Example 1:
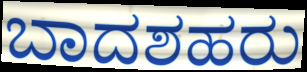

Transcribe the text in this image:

ಬಾದಶಹರು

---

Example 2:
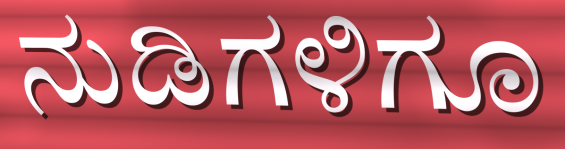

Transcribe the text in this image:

ನುಡಿಗಳಿಗೂ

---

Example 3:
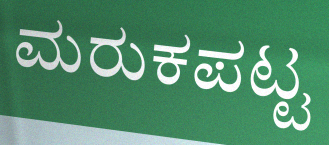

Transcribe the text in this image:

ಮರುಕಪಟ್ಟ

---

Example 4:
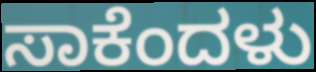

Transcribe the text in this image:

ಸಾಕೆಂದಳು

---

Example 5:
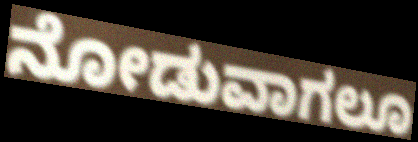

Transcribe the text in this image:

ನೋಡುವಾಗಲೂ